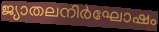
ജ്യാതലനിർഘോഷം